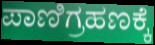
ಪಾಣಿಗ್ರಹಣಕ್ಕೆ